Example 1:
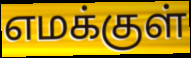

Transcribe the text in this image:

எமக்குள்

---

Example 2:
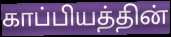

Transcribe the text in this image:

காப்பியத்தின்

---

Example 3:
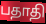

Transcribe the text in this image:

பதாதி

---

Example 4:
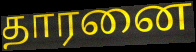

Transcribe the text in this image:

தாரனை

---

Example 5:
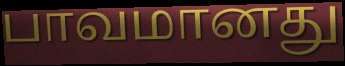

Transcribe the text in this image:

பாவமானது